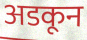
अडकून